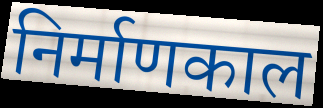
निर्माणकाल